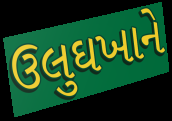
ઉલુઘખાને